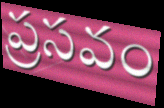
ప్రసవం